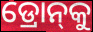
ଡ୍ରୋନ୍‌କୁ